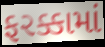
ફરક્કામાં